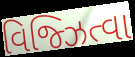
વિજ્ઝિત્વા